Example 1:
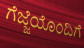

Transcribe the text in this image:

ಗೆಜ್ಜೆಯೊಂದಿಗೆ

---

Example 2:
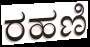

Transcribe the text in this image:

ರಹಣಿ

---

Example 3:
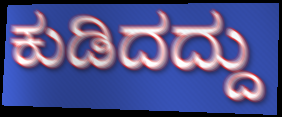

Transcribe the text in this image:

ಕುಡಿದದ್ದು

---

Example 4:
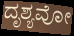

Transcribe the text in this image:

ದೃಶ್ಯವೋ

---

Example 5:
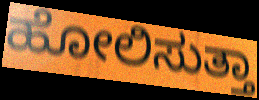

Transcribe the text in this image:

ಹೋಲಿಸುತ್ತಾ